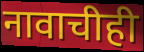
नावाचीही